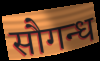
सौगन्ध